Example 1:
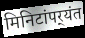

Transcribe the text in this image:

मिनिटांपर्यंत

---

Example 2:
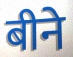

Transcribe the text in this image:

बीने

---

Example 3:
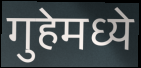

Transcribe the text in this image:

गुहेमध्ये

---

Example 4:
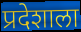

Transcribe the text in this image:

प्रदेशाला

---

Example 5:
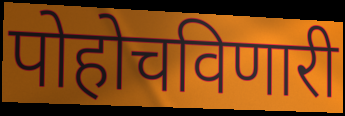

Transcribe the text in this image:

पोहोचविणारी